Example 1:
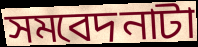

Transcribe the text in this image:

সমবেদনাটা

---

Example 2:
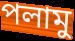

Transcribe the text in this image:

পলামু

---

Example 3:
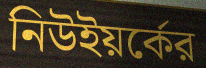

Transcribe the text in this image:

নিউইয়র্কের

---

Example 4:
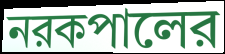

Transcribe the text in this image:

নরকপালের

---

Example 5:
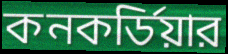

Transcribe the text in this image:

কনকর্ডিয়ার